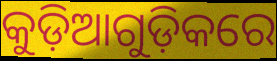
କୁଡ଼ିଆଗୁଡ଼ିକରେ